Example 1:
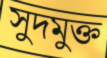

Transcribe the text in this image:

সুদমুক্ত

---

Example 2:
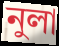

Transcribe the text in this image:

নুলা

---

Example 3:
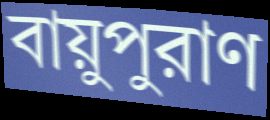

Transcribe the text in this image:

বায়ুপুরাণ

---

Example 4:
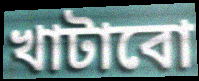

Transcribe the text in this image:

খাটাবো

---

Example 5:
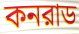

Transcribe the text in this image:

কনরাড